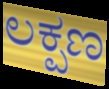
ಲಕ್ಪಣ